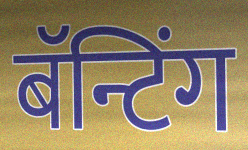
बॅन्टिंग